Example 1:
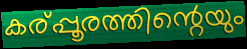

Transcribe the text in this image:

കര്പ്പൂരത്തിന്റെയും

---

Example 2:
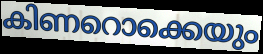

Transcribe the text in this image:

കിണറൊക്കെയും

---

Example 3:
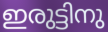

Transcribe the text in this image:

ഇരുട്ടിനു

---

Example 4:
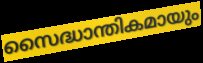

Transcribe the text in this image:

സൈദ്ധാന്തികമായും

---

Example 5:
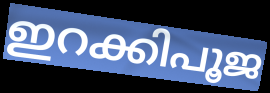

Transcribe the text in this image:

ഇറക്കിപൂജ